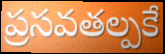
ప్రసవతల్పకే